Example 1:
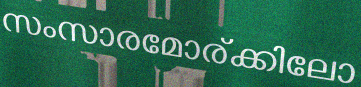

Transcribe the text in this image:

സംസാരമോര്ക്കിലോ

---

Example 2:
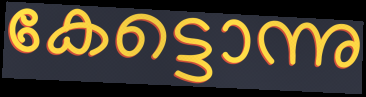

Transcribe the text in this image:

കേട്ടൊന്നു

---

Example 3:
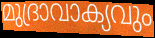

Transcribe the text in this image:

മുദ്രാവാക്യവും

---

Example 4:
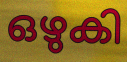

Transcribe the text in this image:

ഒഴുകി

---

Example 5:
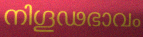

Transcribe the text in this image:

നിഗൂഢഭാവം